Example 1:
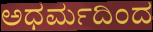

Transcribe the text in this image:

ಅಧರ್ಮದಿಂದ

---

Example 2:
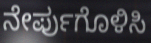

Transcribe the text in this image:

ನೇರ್ಪುಗೊಳಿಸಿ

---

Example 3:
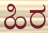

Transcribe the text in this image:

ಹಿರ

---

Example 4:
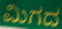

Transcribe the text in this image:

ಮಿಗದ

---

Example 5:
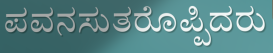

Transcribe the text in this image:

ಪವನಸುತರೊಪ್ಪಿದರು